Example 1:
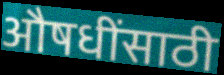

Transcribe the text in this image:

औषधींसाठी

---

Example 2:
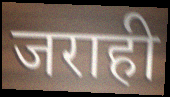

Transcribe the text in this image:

जराही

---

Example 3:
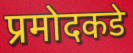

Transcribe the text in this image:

प्रमोदकडे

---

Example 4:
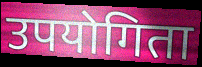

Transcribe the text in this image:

उपयोगिता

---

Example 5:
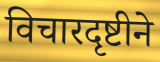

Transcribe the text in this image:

विचारदृष्टीने